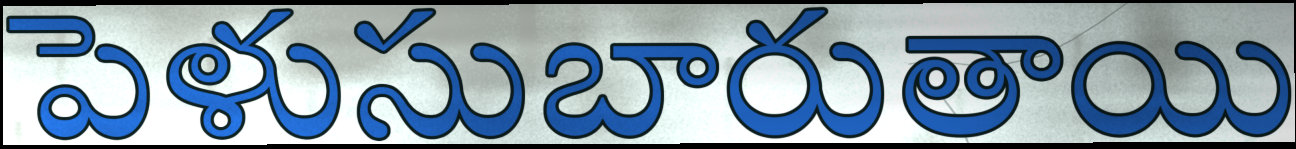
పెళుసుబారుతాయి